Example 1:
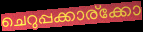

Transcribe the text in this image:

ചെറുപ്പക്കാര്ക്കോ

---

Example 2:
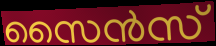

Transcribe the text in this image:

സൈൻസ്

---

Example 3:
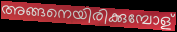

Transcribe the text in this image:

അങ്ങനെയിരിക്കുമ്പോള്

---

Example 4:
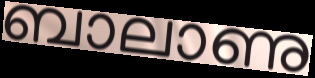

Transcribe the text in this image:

ബാലാണു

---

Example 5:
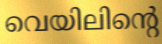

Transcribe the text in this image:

വെയിലിന്റെ